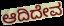
ಆದಿದೇವ